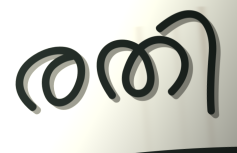
രതി